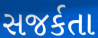
સજર્કતા